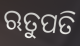
ଋତୁପତି